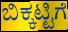
ಬಿಕ್ಕಟ್ಟಿಗೆ